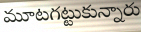
మూటగట్టుకున్నారు